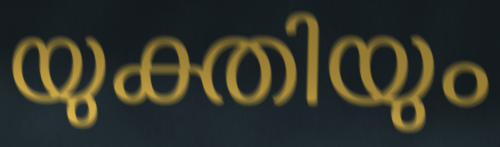
യുക്തിയും